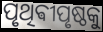
ପୃଥିଵୀପୃଷ୍ଠକୁ